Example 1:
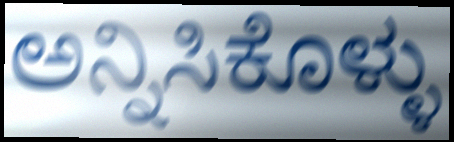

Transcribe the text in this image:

ಅನ್ನಿಸಿಕೊಳ್ಳು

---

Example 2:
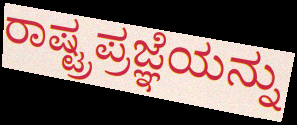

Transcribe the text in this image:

ರಾಷ್ಟ್ರಪ್ರಜ್ಞೆಯನ್ನು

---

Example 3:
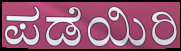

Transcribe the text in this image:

ಪಡೆಯಿರಿ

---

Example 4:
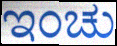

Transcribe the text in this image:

ಇಂಚು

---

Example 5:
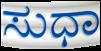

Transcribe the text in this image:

ಸುಧಾ